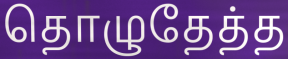
தொழுதேத்த